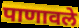
पाणावले